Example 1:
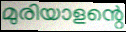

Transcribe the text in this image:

മുരിയാളന്റെ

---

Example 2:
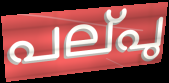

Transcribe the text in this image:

പല്‌പു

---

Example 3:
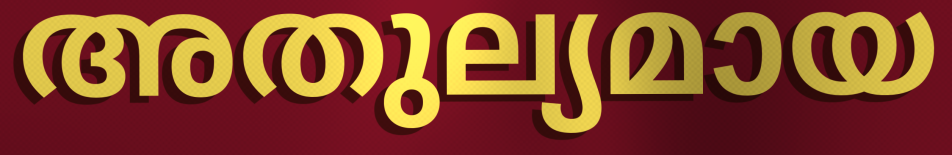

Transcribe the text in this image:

അതുല്യമായ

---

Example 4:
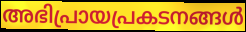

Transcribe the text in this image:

അഭിപ്രായപ്രകടനങ്ങൾ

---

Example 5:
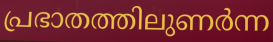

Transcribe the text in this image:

പ്രഭാതത്തിലുണർന്ന